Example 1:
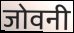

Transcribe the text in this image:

जोवनी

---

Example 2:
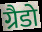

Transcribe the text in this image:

ग्रैडो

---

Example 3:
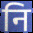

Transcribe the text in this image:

नि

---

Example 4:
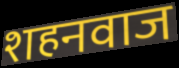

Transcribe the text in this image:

शहनवाज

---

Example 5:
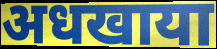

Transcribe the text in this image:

अधखाया